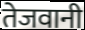
तेजवानी